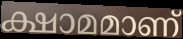
ക്ഷാമമാണ്